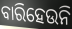
ବାରିହେଉନି